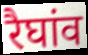
रैघांव